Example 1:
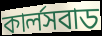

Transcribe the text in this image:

কার্লসবাড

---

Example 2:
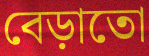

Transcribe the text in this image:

বেড়াতো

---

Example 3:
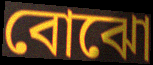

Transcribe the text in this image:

বোঝো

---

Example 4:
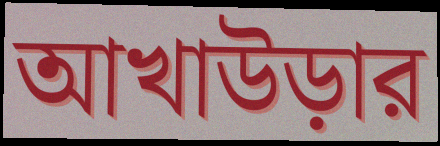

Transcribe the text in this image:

আখাউড়ার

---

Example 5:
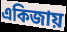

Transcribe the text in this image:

একিজায়